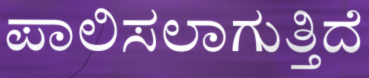
ಪಾಲಿಸಲಾಗುತ್ತಿದೆ